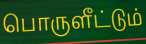
பொருளீட்டும்